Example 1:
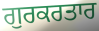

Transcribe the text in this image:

ਗੁਰਕਰਤਾਰ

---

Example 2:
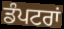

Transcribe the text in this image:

ਡੰਪਟਰਾਂ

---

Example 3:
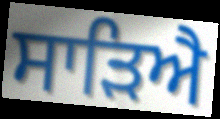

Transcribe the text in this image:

ਸਾੜਿਐ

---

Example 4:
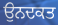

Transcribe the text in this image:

ਉਨਦਕਤ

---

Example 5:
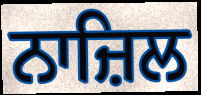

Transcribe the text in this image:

ਨਾਜ਼ਿਲ